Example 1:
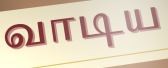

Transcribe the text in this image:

வாடிய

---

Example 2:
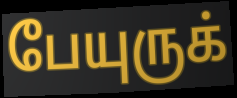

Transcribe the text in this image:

பேயுருக்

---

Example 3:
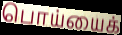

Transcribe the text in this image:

பொய்யைக்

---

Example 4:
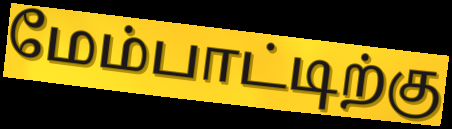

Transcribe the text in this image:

மேம்பாட்டிற்கு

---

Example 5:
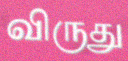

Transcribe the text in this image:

விருது